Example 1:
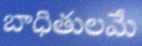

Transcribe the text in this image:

బాధితులమే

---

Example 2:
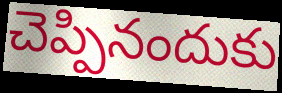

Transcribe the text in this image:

చెప్పినందుకు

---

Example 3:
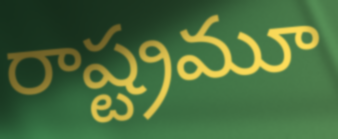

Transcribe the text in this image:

రాష్ట్రమూ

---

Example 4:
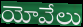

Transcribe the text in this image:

యోవేలు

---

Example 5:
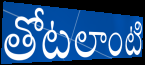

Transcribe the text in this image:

తోటలాంటి